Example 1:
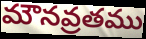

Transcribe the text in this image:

మౌనవ్రతము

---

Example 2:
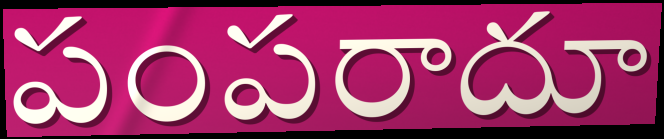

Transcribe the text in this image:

పంపరాదూ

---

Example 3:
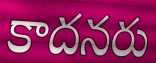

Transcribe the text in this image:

కాదనరు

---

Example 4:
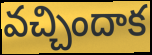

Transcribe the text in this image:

వచ్చిందాక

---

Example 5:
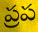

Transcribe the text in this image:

ప్రప